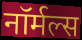
नॉर्मल्स